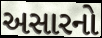
અસારનો